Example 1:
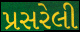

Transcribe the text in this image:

પ્રસરેલી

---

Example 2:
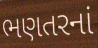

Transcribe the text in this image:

ભણતરનાં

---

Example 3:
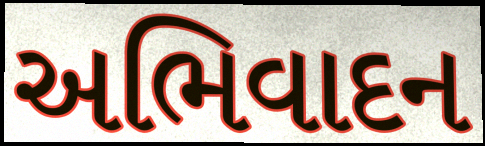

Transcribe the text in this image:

અભિવાદન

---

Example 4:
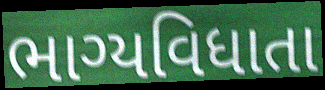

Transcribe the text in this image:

ભાગ્યવિધાતા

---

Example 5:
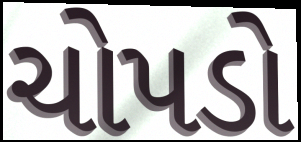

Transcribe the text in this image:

ચોપડો